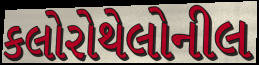
કલોરોથેલોનીલ